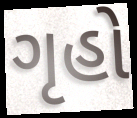
ગૃહો